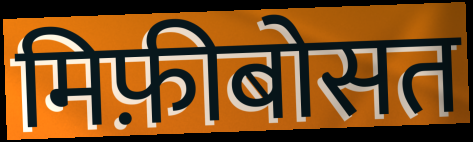
मिफ़ीबोसत